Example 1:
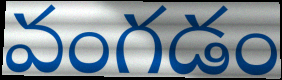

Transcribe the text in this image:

వంగడం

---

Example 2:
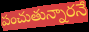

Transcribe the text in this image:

పంచుతున్నారనే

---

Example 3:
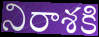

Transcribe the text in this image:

నిరాశకి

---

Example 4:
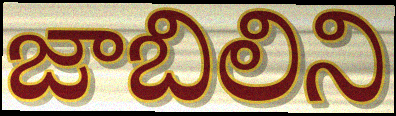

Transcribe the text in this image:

జాబిలిని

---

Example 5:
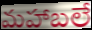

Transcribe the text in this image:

మహాబలే